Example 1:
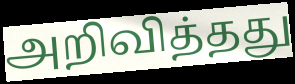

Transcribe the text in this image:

அறிவித்தது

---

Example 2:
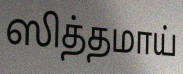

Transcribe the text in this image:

ஸித்தமாய்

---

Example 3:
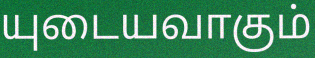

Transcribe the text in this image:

யுடையவாகும்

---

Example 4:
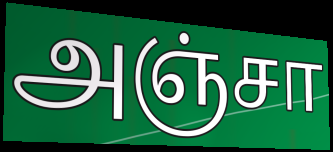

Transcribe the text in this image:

அஞ்சா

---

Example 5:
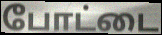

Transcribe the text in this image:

போட்டை